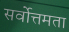
सर्वोत्तमता